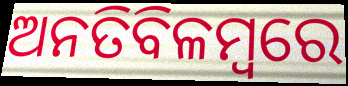
ଅନତିବିଳମ୍ବରେ